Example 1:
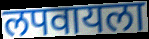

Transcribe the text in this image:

लपवायला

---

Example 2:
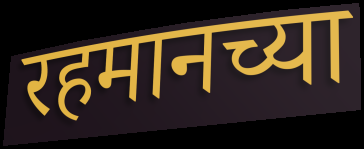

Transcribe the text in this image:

रहमानच्या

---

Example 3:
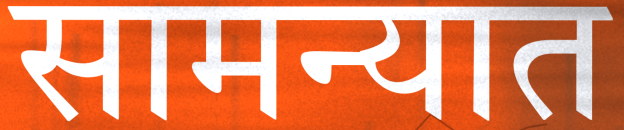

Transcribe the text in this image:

सामन्यात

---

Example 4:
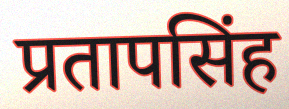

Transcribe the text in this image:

प्रतापसिंह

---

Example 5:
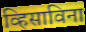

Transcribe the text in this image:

व्हिसाविना